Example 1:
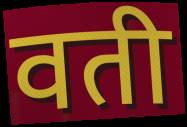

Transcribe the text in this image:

वती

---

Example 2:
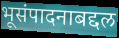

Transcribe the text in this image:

भूसंपादनाबद्दल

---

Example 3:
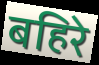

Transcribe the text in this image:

बहिरे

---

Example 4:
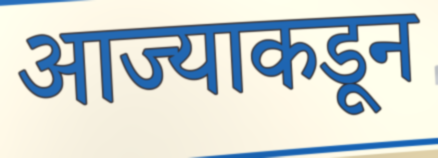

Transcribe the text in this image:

आज्याकडून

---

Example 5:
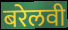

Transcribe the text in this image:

बरेलवी